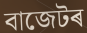
বাজেটৰ